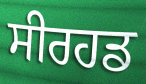
ਸੀਰਹਡ